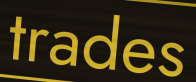
trades